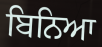
ਬਿਨਿਆ